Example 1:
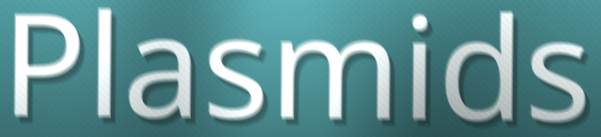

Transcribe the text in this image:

Plasmids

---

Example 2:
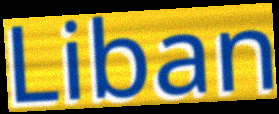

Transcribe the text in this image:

Liban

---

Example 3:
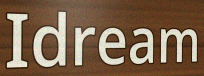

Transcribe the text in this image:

Idream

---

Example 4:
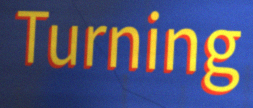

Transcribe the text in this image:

Turning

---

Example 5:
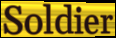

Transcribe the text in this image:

Soldier